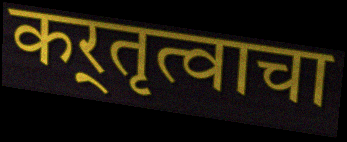
कर्तृत्वाचा